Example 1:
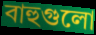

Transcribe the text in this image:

বাহুগুলো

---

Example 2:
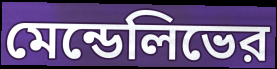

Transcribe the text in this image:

মেন্ডেলিভের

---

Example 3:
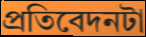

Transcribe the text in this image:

প্রতিবেদনটা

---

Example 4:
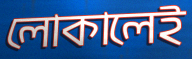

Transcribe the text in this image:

লোকালেই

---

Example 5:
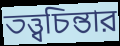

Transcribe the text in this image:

তত্ত্বচিন্তার